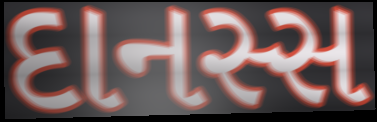
દાનસ્સ